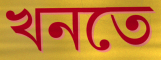
খনতে